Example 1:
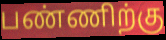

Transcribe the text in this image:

பண்ணிற்கு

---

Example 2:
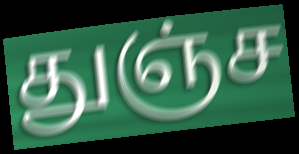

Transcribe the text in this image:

துஞ்ச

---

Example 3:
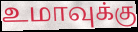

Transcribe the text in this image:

உமாவுக்கு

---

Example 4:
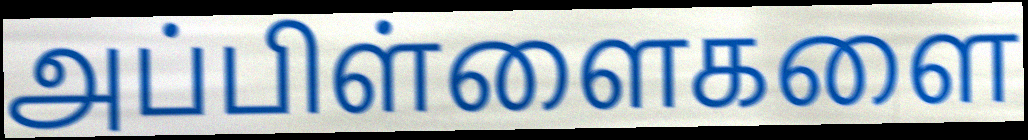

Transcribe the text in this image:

அப்பிள்ளைகளை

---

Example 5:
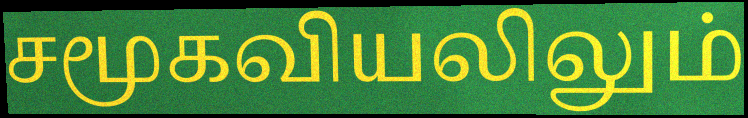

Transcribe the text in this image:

சமூகவியலிலும்